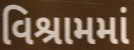
વિશ્રામમાં